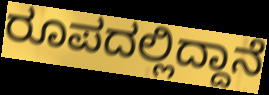
ರೂಪದಲ್ಲಿದ್ದಾನೆ